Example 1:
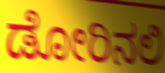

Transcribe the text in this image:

ಡೋರಿನಲಿ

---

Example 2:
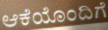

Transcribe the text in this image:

ಆಕೆಯೊಂದಿಗೆ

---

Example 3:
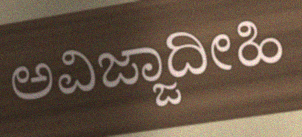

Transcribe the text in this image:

ಅವಿಜ್ಜಾದೀಹಿ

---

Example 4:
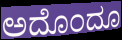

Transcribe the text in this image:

ಅದೊಂದೂ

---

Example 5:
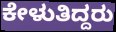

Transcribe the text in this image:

ಕೇಳುತಿದ್ದರು